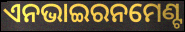
ଏନଭାଇରନମେଣ୍ଟ